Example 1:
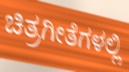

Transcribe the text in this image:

ಚಿತ್ರಗೀತೆಗಳಲ್ಲಿ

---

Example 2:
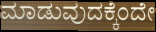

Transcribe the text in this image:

ಮಾಡುವುದಕ್ಕೆಂದೇ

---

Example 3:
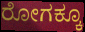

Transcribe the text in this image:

ರೋಗಕ್ಕೂ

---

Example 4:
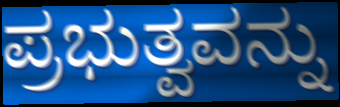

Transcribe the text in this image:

ಪ್ರಭುತ್ವವನ್ನು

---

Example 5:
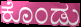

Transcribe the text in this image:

ಕೊಂಡು